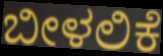
ಬೀಳಲಿಕೆ